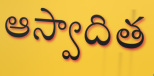
ఆస్వాదిత